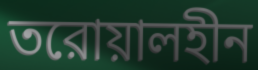
তরোয়ালহীন